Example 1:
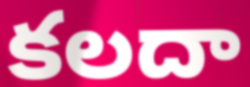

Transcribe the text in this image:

కలదా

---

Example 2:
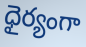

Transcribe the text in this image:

ధైర్యంగా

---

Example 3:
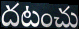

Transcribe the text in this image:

దటంచు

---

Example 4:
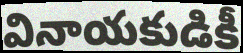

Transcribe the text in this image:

వినాయకుడికీ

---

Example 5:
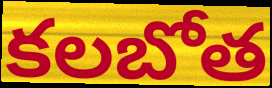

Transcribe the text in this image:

కలబోత